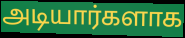
அடியார்களாக